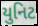
યુનિટ